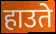
हाउते